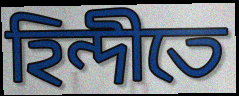
হিন্দীতে